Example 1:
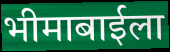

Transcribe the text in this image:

भीमाबाईला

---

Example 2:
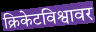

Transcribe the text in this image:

क्रिकेटविश्वावर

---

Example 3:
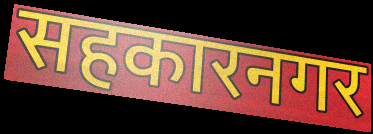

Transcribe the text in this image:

सहकारनगर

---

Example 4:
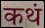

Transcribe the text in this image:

कथं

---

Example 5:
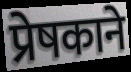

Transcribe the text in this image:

प्रेषकाने